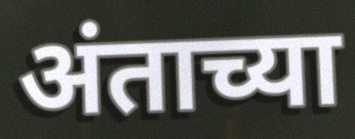
अंताच्या